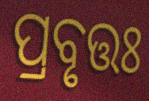
ପ୍ରବୃତ୍ତଃ